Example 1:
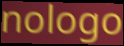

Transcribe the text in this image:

nologo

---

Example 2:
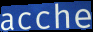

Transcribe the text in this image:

acche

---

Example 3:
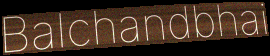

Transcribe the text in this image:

Balchandbhai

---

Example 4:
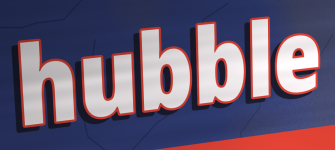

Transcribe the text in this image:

hubble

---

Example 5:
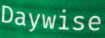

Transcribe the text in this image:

Daywise